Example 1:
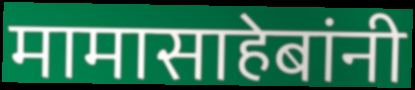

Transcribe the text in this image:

मामासाहेबांनी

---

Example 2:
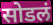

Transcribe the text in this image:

सोडलं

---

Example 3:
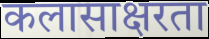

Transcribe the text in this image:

कलासाक्षरता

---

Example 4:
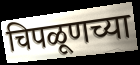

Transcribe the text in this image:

चिपळूणच्या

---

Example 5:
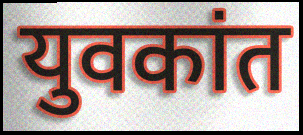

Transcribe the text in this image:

युवकांत